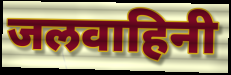
जलवाहिनी